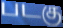
படகு